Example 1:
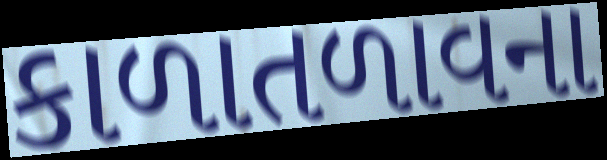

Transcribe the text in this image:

કાળાતળાવના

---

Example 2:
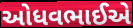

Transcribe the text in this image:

ઓધવભાઈએ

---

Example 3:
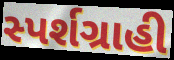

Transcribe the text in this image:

સ્પર્શગ્રાહી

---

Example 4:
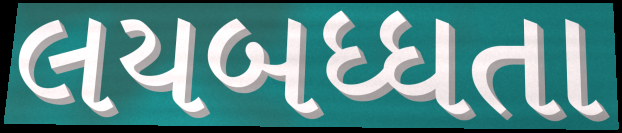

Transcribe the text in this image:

લયબધ્ધતા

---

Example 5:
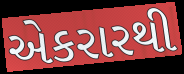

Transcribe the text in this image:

એકરારથી